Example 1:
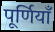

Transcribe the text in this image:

पूर्णियाँ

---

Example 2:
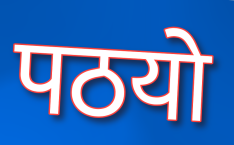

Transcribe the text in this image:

पठयो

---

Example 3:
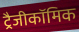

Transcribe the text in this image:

ट्रैजीकॉमिक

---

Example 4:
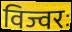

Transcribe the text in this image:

विज्वरः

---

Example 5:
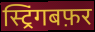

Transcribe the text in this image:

स्ट्रिंगबफ़र